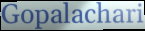
Gopalachari